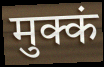
मुक्कं